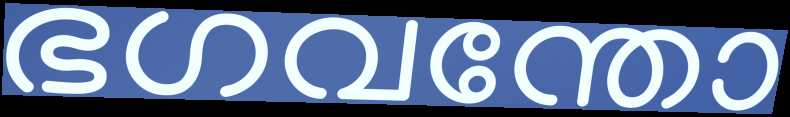
ഭഗവന്തോ